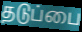
தடுப்பை